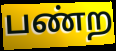
பண்ற